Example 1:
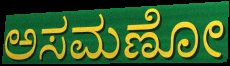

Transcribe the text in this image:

ಅಸಮಣೋ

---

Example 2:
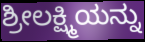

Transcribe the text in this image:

ಶ್ರೀಲಕ್ಷ್ಮಿಯನ್ನು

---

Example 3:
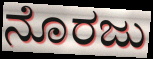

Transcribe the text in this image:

ನೊರಜು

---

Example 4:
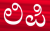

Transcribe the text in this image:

ಲಿಪಿ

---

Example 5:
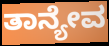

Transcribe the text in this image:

ತಾನ್ಯೇವ